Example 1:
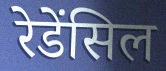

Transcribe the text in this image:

रेडेंसिल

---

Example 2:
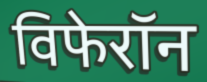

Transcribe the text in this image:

विफेरॉन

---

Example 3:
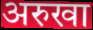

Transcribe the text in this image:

अरुखा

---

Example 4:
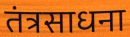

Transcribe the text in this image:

तंत्रसाधना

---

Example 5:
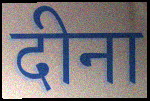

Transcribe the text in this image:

दीना